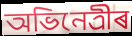
অভিনেত্ৰীৰ